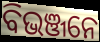
ବିଭଞ୍ଜନେ